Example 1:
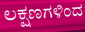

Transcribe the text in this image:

ಲಕ್ಷಣಗಳಿಂದ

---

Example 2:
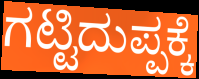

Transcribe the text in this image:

ಗಟ್ಟಿದುಪ್ಪಕ್ಕೆ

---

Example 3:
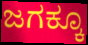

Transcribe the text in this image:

ಜಗಕ್ಕೂ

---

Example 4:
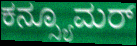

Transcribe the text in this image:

ಕನ್ಸ್ಯೂಮರ್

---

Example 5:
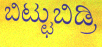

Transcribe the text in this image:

ಬಿಟ್ಟುಬಿಡ್ರಿ